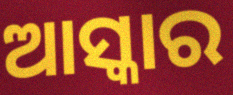
ଆସ୍କାର